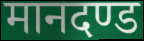
मानदण्ड